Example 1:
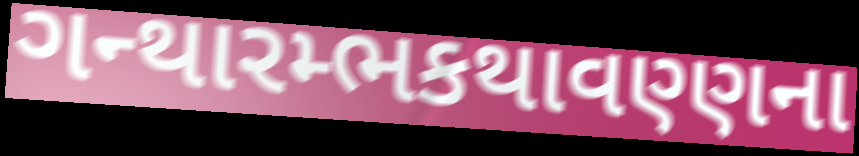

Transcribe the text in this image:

ગન્થારમ્ભકથાવણ્ણના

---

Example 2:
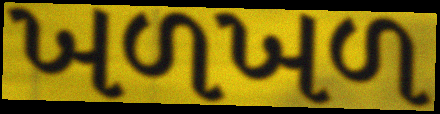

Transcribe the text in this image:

ખળખળ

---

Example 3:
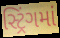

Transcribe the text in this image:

સ્ટ્રિંગમાં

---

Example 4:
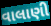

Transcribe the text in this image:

વાલાણી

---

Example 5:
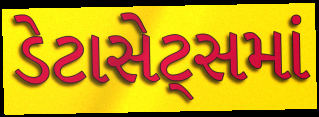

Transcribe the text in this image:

ડેટાસેટ્સમાં